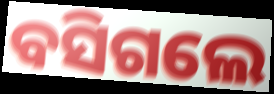
ବସିଗଲେ